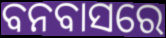
ବନବାସରେ